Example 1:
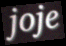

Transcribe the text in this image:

joje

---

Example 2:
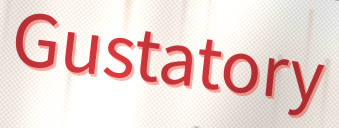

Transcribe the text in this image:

Gustatory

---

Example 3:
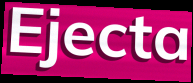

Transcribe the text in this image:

Ejecta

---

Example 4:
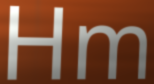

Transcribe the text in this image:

Hm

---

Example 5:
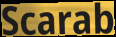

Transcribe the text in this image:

Scarab